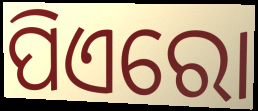
ପିଏରୋ